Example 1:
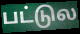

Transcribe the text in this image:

பட்டுல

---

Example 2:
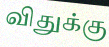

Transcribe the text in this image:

விதுக்கு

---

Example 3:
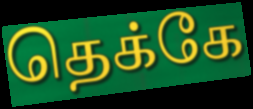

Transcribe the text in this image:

தெக்கே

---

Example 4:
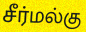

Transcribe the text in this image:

சீர்மல்கு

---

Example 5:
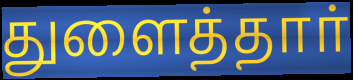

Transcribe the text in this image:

துளைத்தார்